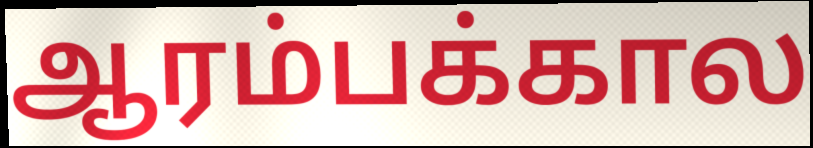
ஆரம்பக்கால